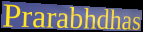
Prarabhdhas